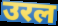
उरल